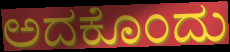
ಅದಕೊಂದು